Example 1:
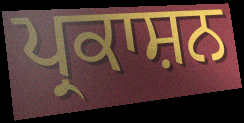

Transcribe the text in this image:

ਪ੍ਰਕਾਸ਼ਨ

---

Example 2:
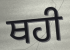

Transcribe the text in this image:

ਥਹੀ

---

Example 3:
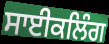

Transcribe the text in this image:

ਸਾਈਕਲਿੰਗ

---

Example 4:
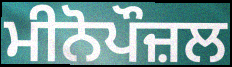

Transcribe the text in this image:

ਮੀਨੋਪੌਜ਼ਲ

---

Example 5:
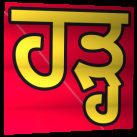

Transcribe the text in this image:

ਹੜ੍ਹ